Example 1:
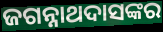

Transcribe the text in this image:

ଜଗନ୍ନାଥଦାସଙ୍କର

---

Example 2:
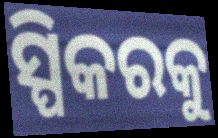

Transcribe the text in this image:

ସ୍ପିକରକୁ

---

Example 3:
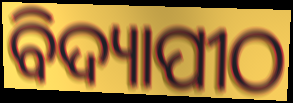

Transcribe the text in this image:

ବିଦ୍ୟାପୀଠ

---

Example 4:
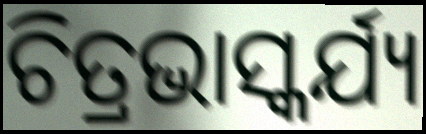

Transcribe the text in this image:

ଚିତ୍ରଭାସ୍କର୍ଯ୍ୟ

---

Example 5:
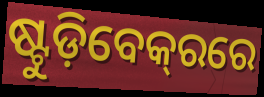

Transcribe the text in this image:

ଷ୍ଟୁଡ଼ିବେକ୍‌ରରେ